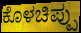
ಕೊಳಚಿಪ್ಪು